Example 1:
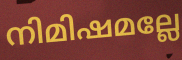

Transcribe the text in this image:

നിമിഷമല്ലേ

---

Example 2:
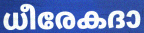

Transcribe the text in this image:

ധീരേകദാ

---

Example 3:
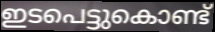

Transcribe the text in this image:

ഇടപെട്ടുകൊണ്ട്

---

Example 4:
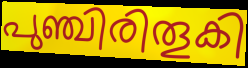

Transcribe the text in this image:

പുഞ്ചിരിതൂകി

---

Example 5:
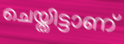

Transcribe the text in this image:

ചെയ്തിട്ടാണ്